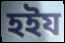
হইয